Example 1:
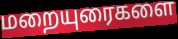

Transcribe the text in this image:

மறையுரைகளை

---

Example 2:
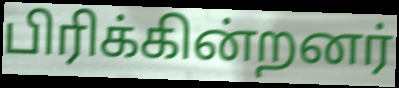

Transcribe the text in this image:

பிரிக்கின்றனர்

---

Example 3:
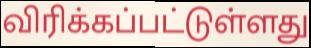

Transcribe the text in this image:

விரிக்கப்பட்டுள்ளது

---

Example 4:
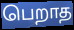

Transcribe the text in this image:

பெறாத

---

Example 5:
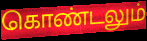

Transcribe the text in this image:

கொண்டலும்